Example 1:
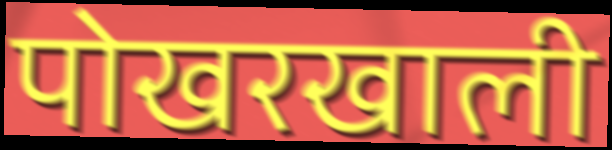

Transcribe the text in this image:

पोखरखाली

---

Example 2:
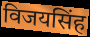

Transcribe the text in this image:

विजयसिंह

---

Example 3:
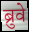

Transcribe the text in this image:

ब्रुवे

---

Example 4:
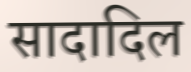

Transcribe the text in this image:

सादादिल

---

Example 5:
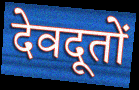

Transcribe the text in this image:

देवदूतों